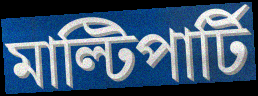
মাল্টিপার্টি